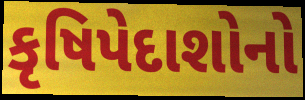
કૃષિપેદાશોનો